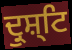
ਦ੍ਰੁਸ਼੍ਟਿ